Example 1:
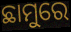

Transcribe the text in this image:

ଛାମୁରେ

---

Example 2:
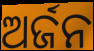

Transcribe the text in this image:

ଅର୍ଜନ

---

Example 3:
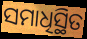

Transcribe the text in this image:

ସମାଧିସ୍ଥିତ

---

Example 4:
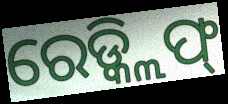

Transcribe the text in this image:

ରେଡ୍କ୍ଲିଫ୍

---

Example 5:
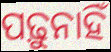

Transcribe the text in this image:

ପଢ଼ୁନାହିଁ